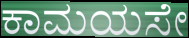
ಕಾಮಯಸೇ